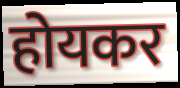
होयकर